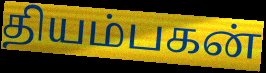
தியம்பகன்